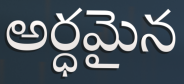
అర్ధమైన